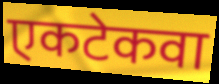
एकटेकवा